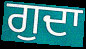
ਗੁਦਾ